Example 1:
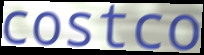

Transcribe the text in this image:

costco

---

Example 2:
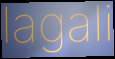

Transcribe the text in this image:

lagali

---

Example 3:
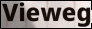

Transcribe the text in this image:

Vieweg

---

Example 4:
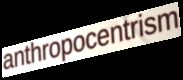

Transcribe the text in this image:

anthropocentrism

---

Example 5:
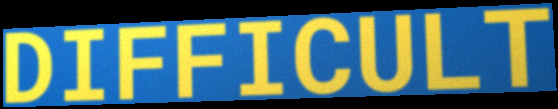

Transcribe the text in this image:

DIFFICULT